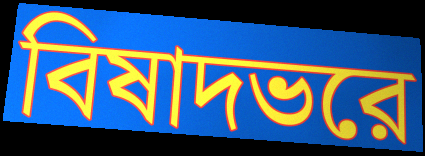
বিষাদভরে